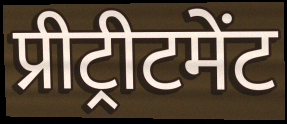
प्रीट्रीटमेंट